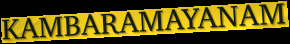
KAMBARAMAYANAM